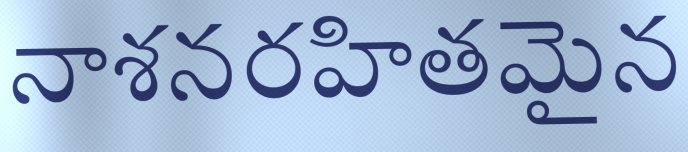
నాశనరహితమైన